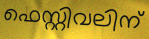
ഫെസ്റ്റിവലിന്